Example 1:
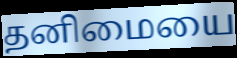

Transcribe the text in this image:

தனிமையை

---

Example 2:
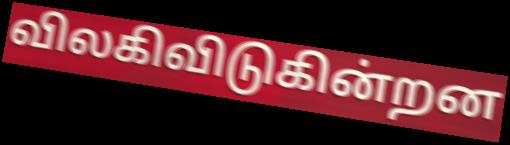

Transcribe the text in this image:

விலகிவிடுகின்றன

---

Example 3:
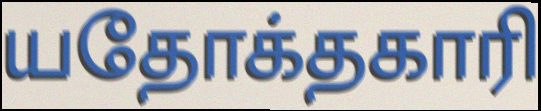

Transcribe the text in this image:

யதோக்தகாரி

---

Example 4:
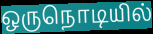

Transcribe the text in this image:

ஒருநொடியில்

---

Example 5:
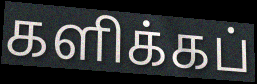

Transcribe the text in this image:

களிக்கப்